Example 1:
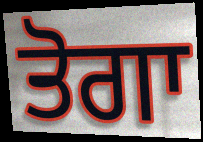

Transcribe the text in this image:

ਤੋਗਾ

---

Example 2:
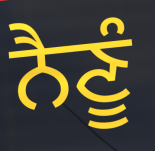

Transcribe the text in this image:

ਨੈਣੂੰ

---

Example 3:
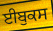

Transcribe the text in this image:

ਈਬੁਕਸ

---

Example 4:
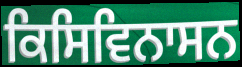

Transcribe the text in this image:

ਕਿਸਿਵਿਨਾਸਨ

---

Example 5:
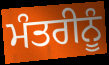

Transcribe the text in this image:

ਮੰਤਰੀਨੂੰ